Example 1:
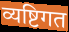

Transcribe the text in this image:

व्यष्टिगत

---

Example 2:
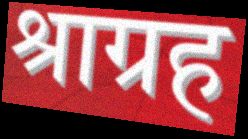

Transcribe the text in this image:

श्राग्रह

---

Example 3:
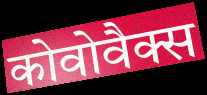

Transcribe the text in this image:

कोवोवैक्स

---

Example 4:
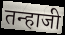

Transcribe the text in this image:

तन्हाजी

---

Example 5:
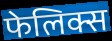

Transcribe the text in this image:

फेलिक्स